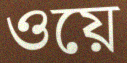
ওয়ে